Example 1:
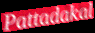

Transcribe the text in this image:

Pattadakal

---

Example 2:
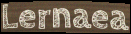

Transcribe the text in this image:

Lernaea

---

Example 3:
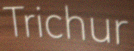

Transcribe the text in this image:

Trichur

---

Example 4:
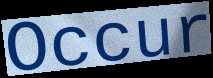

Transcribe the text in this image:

Occur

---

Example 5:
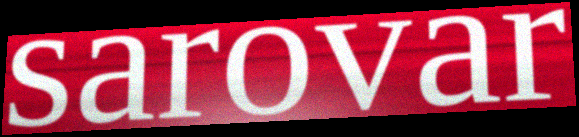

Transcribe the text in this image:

sarovar